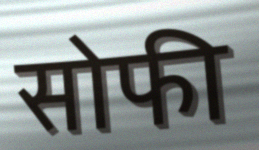
सोफी